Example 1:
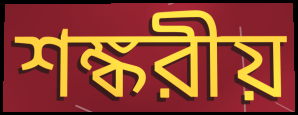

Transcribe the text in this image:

শঙ্করীয়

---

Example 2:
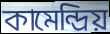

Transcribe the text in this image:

কামেন্দ্রিয়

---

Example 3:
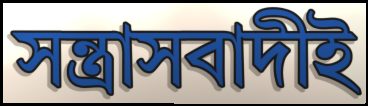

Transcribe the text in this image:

সন্ত্রাসবাদীই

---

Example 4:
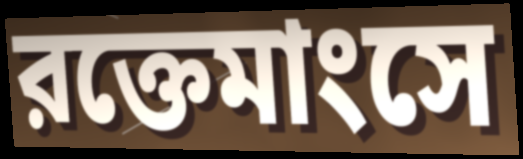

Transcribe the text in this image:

রক্তেমাংসে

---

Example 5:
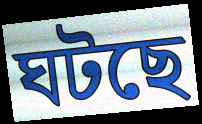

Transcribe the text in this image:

ঘটছে